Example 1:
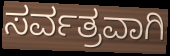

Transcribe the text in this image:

ಸರ್ವತ್ರವಾಗಿ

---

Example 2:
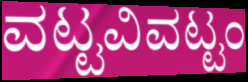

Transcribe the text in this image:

ವಟ್ಟವಿವಟ್ಟಂ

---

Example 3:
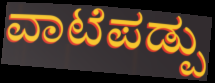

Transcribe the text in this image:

ವಾಟೆಪಡ್ಪು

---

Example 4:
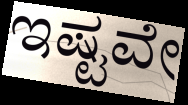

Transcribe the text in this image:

ಇಷ್ಟವೇ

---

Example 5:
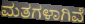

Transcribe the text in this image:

ಮತಗಳಾಗಿವೆ